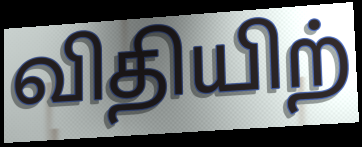
விதியிற்